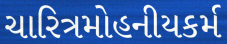
ચારિત્રમોહનીયકર્મ